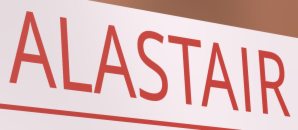
ALASTAIR